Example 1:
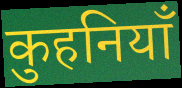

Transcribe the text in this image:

कुहनियाँ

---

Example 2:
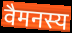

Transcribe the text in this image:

वैमनस्य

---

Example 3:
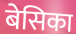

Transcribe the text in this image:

बेसिका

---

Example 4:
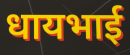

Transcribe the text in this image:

धायभाई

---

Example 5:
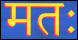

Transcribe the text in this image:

मतः